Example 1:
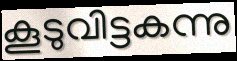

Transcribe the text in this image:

കൂടുവിട്ടകന്നു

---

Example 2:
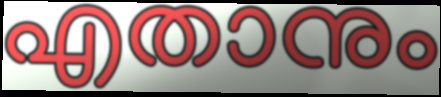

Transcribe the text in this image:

എതാനും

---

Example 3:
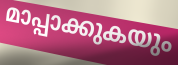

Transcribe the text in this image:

മാപ്പാക്കുകയും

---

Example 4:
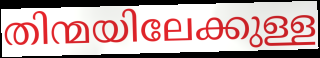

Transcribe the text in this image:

തിന്മയിലേക്കുള്ള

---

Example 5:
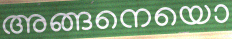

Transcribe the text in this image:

അങ്ങനെയൊ